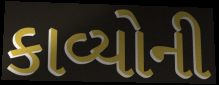
કાવ્યોની